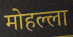
मोहल्ला